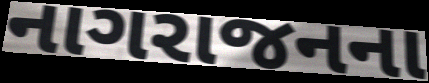
નાગરાજનના